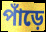
পাঁড়ে